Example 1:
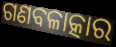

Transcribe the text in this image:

ଗଣବଳାତ୍କାର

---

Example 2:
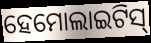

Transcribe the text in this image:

ହେମୋଲାଇଟିସ୍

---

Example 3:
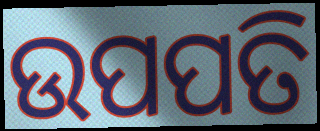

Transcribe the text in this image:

ଉପପତି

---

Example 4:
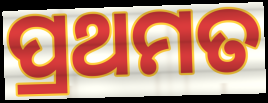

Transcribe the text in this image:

ପ୍ରଥମତ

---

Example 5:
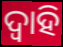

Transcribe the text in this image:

ଦ୍ଵାହି